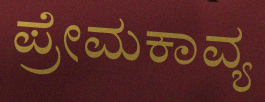
ಪ್ರೇಮಕಾವ್ಯ